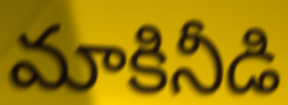
మాకినీడి